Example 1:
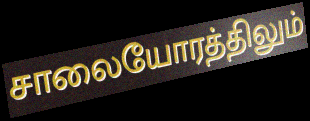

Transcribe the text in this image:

சாலையோரத்திலும்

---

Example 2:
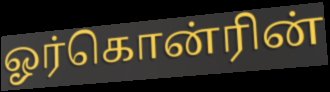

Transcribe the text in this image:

ஓர்கொன்ரின்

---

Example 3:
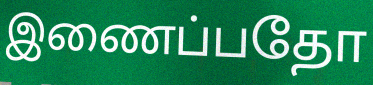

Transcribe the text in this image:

இணைப்பதோ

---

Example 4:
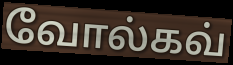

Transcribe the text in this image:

வோல்கவ்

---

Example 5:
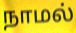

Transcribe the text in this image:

நாமல்